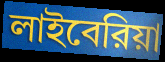
লাইবেরিয়া